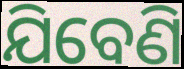
ଯିବେଣି